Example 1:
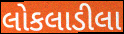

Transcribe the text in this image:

લોકલાડીલા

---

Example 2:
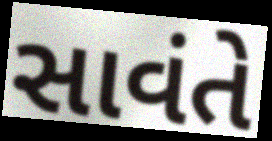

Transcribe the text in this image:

સાવંતે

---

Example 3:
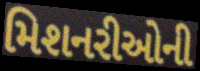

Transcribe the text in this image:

મિશનરીઓની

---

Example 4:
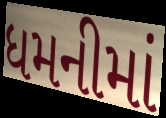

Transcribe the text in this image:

ધમનીમાં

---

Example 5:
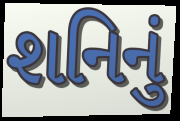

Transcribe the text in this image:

શનિનું